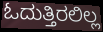
ಓದುತ್ತಿರಲಿಲ್ಲ